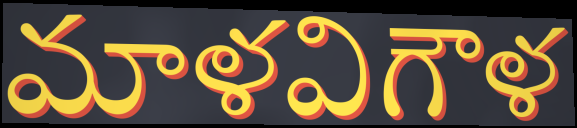
మాళవిగౌళ